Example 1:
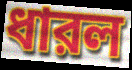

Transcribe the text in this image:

ধারল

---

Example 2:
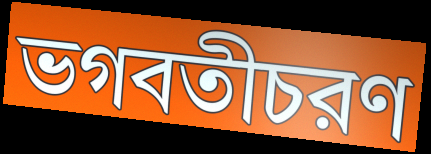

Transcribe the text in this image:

ভগবতীচরণ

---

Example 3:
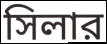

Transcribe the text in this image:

সিলার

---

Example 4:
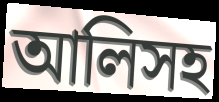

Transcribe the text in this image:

আলিসহ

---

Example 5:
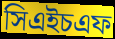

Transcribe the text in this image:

সিএইচএফ